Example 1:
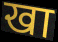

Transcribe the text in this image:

खा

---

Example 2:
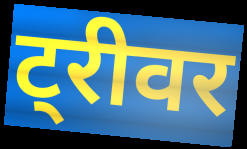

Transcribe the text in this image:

ट्रीवर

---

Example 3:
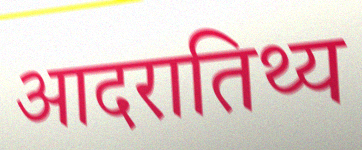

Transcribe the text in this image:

आदरातिथ्य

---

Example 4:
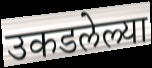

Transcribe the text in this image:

उकडलेल्या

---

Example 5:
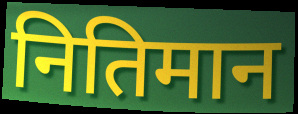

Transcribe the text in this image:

नितिमान